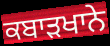
ਕਬਾੜਖਾਨੇ